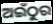
ଅଇଁଠୁର